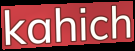
kahich